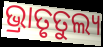
ଭ୍ରାତୃତୁଲ୍ୟ